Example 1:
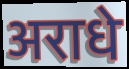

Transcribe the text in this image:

अराधे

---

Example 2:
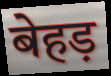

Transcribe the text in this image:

बेहड़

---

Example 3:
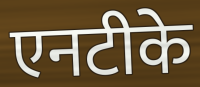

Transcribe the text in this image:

एनटीके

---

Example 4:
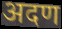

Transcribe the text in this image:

अदण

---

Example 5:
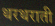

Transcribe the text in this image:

थरथराती